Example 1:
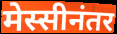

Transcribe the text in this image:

मेस्सीनंतर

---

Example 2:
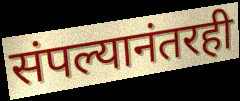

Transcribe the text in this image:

संपल्यानंतरही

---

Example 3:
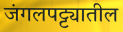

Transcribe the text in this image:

जंगलपट्ट्यातील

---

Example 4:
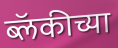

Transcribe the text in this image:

ब्लॅकीच्या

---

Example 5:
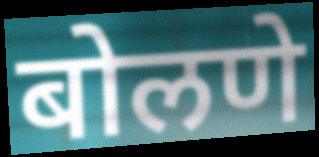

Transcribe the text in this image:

बोलणे